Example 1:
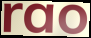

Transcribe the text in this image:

rao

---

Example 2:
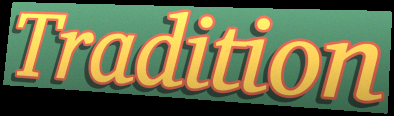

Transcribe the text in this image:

Tradition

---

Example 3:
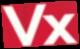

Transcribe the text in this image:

Vx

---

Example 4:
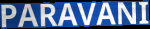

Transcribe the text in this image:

PARAVANI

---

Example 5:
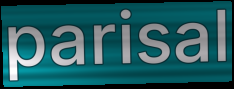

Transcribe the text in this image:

parisal